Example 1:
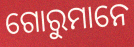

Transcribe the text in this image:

ଗୋରୁମାନେ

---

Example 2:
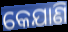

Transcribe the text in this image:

କେଯାଣି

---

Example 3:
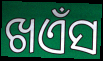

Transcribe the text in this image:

ଖଏଁସ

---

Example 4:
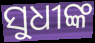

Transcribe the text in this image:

ସୁଧୀଙ୍କ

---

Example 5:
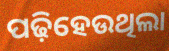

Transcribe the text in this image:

ପଢ଼ିହେଉଥିଲା